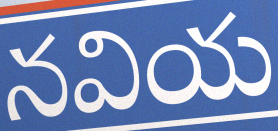
నవియ